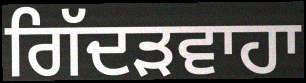
ਗਿੱਦੜਵਾਹਾ